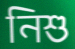
নিশু